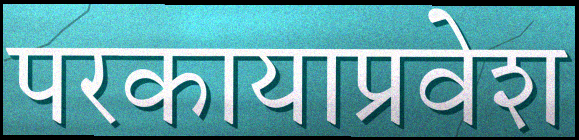
परकायाप्रवेश